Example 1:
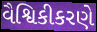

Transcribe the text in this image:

વૈશ્વિકીકરણે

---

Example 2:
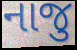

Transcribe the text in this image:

નાજુ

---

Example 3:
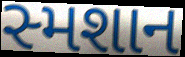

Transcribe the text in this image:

સ્મશાન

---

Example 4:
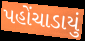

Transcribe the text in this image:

પહોંચાડાયું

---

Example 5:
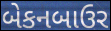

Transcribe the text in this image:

બેકનબાઉર